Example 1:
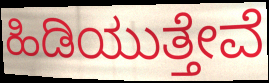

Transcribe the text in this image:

ಹಿಡಿಯುತ್ತೇವೆ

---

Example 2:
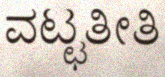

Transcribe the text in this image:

ವಟ್ಟತೀತಿ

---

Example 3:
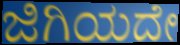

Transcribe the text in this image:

ಜಿಗಿಯದೇ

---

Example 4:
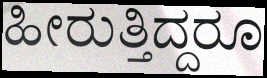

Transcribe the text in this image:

ಹೀರುತ್ತಿದ್ದರೂ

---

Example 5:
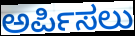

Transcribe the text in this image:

ಅರ್ಪಿಸಲು